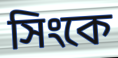
সিংকে